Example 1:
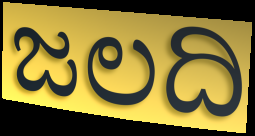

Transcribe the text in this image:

ಜಲದಿ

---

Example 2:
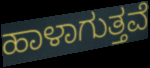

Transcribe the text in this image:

ಹಾಳಾಗುತ್ತವೆ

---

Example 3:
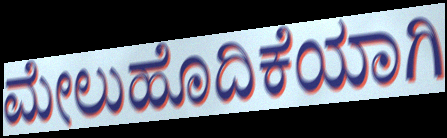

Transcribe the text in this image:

ಮೇಲುಹೊದಿಕೆಯಾಗಿ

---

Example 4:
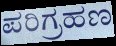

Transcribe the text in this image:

ಪರಿಗ್ರಹಣ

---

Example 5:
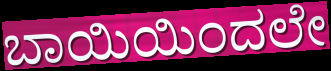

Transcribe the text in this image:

ಬಾಯಿಯಿಂದಲೇ